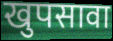
खुपसावा